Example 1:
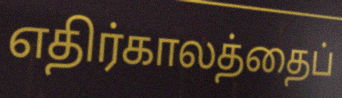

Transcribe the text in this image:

எதிர்காலத்தைப்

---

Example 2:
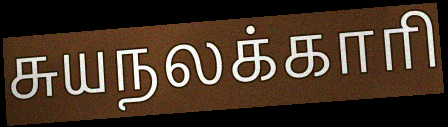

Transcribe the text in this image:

சுயநலக்காரி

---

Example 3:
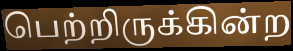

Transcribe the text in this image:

பெற்றிருக்கின்ற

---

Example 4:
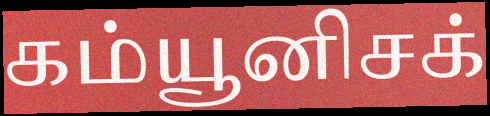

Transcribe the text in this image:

கம்யூனிசக்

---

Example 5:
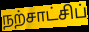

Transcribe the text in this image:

நற்சாட்சிப்